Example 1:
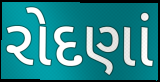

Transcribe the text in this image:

રોદણાં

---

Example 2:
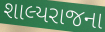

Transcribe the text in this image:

શાલ્યરાજના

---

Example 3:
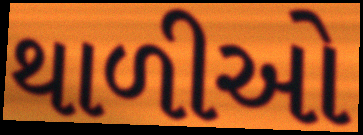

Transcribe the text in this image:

થાળીઓ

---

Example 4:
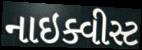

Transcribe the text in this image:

નાઇક્વીસ્ટ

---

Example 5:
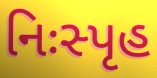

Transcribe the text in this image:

નિઃસ્પૃહ